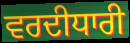
ਵਰਦੀਧਾਰੀ